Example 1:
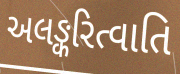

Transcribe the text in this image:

અલઙ્કરિત્વાતિ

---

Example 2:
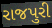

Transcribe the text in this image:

રાજપુરી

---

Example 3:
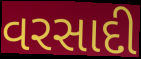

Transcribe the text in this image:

વરસાદી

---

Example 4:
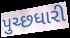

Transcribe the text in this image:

પુચ્છધારી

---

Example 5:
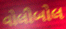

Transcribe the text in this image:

વોલીબોલ